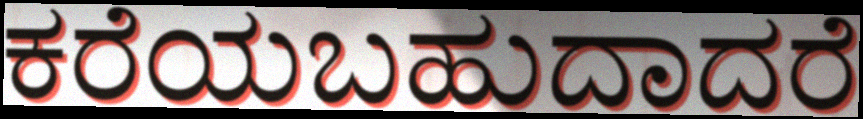
ಕರೆಯಬಹುದಾದರೆ